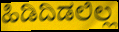
ಹಿಡಿದಿಡಲಿಲ್ಲ